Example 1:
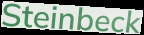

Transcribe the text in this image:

Steinbeck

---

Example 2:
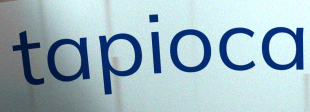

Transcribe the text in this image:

tapioca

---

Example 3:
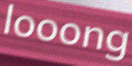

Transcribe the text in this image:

looong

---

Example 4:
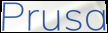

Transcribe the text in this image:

Prusa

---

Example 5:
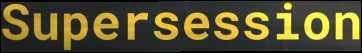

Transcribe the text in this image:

Supersession